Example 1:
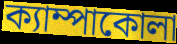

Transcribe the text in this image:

ক্যাম্পাকোলা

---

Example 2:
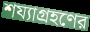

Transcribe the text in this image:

শয্যাগ্রহণের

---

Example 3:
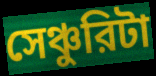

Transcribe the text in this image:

সেঞ্চুরিটা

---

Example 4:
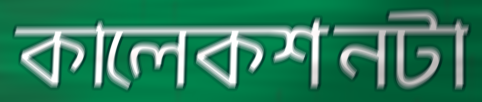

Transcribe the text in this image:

কালেকশনটা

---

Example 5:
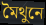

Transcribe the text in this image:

মৈথুনে